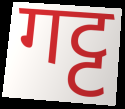
गट्ट